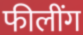
फीलींग